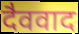
दैववाद